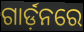
ଗାର୍ଡ଼ନରେ